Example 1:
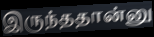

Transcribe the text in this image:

இருந்ததான்னு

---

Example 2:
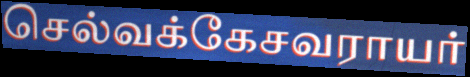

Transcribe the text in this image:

செல்வக்கேசவராயர்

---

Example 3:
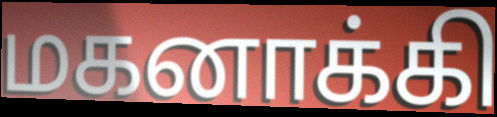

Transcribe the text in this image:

மகனாக்கி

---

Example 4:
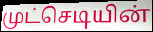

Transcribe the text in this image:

முட்செடியின்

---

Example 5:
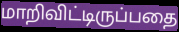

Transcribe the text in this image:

மாறிவிட்டிருப்பதை